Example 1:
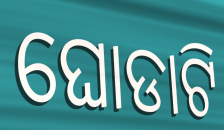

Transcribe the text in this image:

ଘୋଡାଟି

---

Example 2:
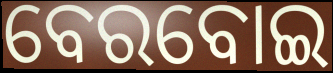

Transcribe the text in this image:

ବେରବୋଇ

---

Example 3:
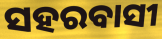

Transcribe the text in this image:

ସହରବାସୀ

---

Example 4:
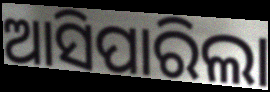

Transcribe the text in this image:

ଆସିପାରିଲା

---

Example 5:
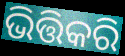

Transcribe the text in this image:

ଭିତ୍ତିକରି